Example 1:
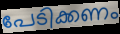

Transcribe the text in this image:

പേടിക്കണം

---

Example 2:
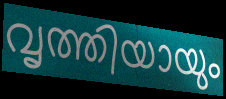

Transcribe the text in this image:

വൃത്തിയായും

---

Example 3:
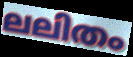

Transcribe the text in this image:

ലലിതം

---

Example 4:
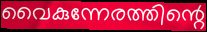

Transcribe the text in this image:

വൈകുന്നേരത്തിന്റെ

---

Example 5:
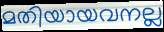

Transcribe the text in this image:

മതിയായവനല്ല